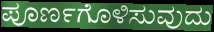
ಪೂರ್ಣಗೊಳಿಸುವುದು